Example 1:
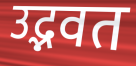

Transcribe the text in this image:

उद्भवत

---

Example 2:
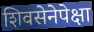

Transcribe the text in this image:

शिवसेनेपेक्षा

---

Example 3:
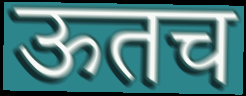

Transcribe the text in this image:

ऊतच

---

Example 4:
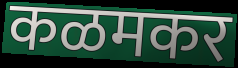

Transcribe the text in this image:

कळमकर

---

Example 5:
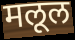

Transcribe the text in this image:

मलूल